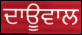
ਦਾਊਵਾਲ